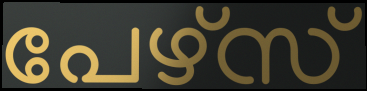
പേഴ്സ്